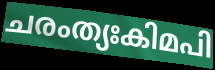
ചരംത്യഃകിമപി